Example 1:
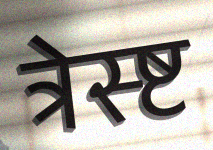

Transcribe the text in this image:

त्रेस्ष्ट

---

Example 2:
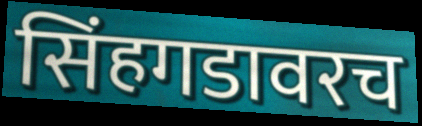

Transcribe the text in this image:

सिंहगडावरच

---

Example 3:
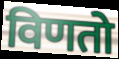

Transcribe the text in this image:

विणतो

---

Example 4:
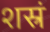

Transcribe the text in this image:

शस्रं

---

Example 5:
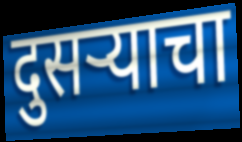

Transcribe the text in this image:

दुसऱ्याचा